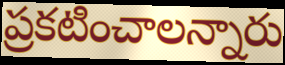
ప్రకటించాలన్నారు